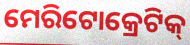
ମେରିଟୋକ୍ରେଟିକ୍